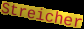
Streicher